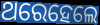
ଥରେହେଲେ